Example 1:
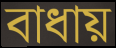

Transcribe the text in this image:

বাধায়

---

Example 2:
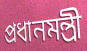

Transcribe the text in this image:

প্রধানমন্ত্রী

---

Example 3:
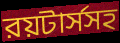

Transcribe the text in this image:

রয়টার্সসহ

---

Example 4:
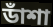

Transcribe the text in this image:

ডাঁশা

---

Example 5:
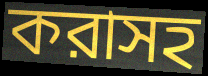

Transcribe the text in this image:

করাসহ